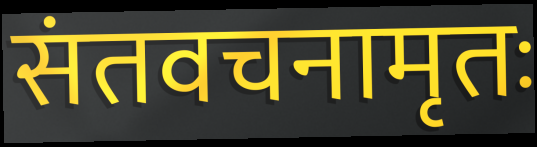
संतवचनामृतः